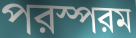
পরস্পরম